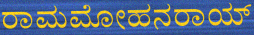
ರಾಮಮೋಹನರಾಯ್